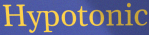
Hypotonic